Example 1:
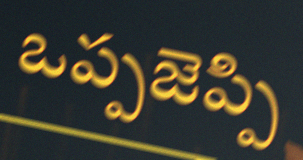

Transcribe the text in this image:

ఒప్పజెప్పి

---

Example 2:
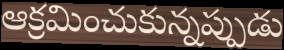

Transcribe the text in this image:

ఆక్రమించుకున్నప్పుడు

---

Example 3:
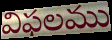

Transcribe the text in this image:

విఫలము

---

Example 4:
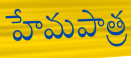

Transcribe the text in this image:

హేమపాత్ర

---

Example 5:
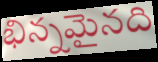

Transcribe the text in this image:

భిన్నమైనది